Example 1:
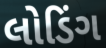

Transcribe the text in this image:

લોડિંગ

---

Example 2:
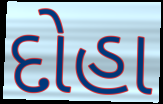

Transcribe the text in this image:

દોહા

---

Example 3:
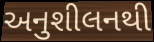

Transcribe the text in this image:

અનુશીલનથી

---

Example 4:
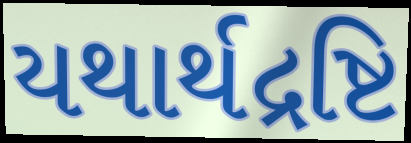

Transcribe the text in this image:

યથાર્થદ્રષ્ટિ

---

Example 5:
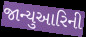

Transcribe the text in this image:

જાન્યુઆરિની